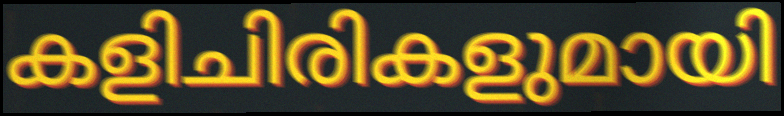
കളിചിരികളുമായി